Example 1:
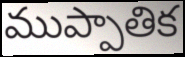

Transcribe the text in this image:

ముప్పాతిక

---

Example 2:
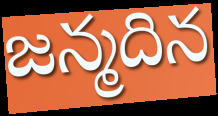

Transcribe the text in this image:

జన్మదిన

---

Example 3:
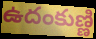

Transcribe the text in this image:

ఉదంకుణ్ణి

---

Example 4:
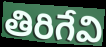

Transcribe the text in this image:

తిరిగేవి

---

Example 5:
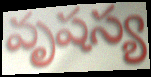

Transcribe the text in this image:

వృషస్య